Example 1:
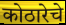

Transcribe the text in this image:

कोठारेचे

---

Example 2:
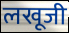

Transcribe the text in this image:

लखूजी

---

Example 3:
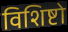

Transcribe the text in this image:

विशिष्टो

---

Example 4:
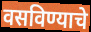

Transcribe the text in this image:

वसविण्याचे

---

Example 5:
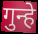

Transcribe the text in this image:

गुन्हे